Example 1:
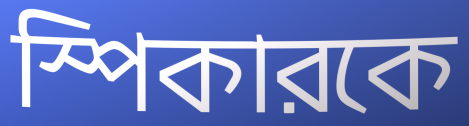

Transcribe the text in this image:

স্পিকারকে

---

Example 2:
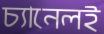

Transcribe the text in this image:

চ্যানেলই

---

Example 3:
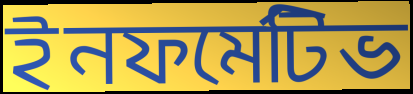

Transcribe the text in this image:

ইনফর্মেটিভ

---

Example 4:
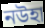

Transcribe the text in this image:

নউহা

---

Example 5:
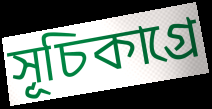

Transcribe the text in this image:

সূচিকাগ্রে